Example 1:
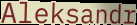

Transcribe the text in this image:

Aleksandr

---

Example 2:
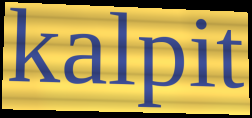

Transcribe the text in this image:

kalpit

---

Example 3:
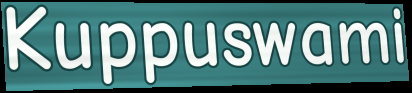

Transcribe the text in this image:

Kuppuswami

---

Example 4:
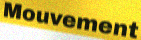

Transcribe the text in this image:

Mouvement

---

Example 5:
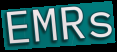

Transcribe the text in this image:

EMRs